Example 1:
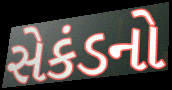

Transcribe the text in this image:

સેકંડનો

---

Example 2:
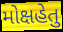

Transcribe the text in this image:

મોક્ષહેતુ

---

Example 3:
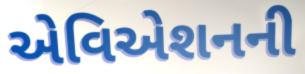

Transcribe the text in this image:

એવિએશનની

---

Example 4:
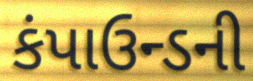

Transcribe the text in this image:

કંપાઉન્ડની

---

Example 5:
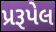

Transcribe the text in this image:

પ્રરૂપેલ